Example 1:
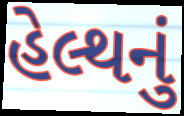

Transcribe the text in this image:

હેલ્થનું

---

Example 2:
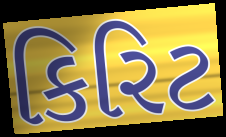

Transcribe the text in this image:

કિરિટ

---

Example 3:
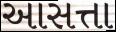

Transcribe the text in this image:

આસત્તા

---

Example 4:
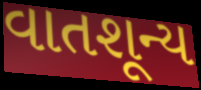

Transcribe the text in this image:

વાતશૂન્ય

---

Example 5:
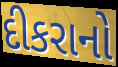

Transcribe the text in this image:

દીકરાનો